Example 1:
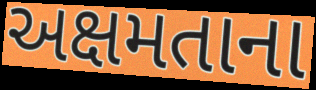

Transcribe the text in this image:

અક્ષમતાના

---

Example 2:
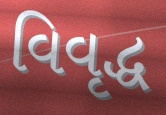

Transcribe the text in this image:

વિવૃદ્ધ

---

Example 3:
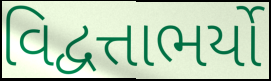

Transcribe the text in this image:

વિદ્વત્તાભર્યો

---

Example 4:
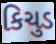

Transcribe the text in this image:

કિચુડ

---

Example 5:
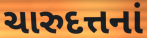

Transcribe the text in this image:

ચારુદત્તનાં